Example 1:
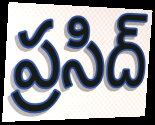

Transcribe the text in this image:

ప్రసిద్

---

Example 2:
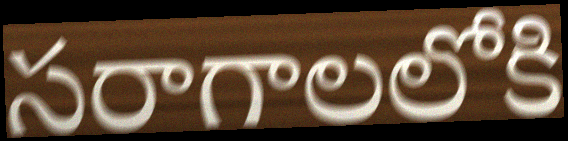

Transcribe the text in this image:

సరాగాలలోకి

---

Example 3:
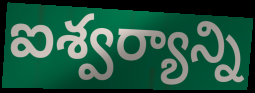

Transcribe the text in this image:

ఐశ్వర్యాన్ని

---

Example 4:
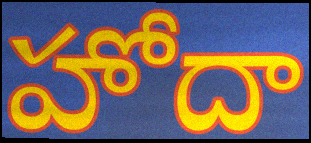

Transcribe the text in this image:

హోదా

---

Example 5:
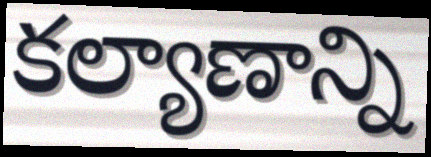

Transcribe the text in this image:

కల్యాణాన్ని